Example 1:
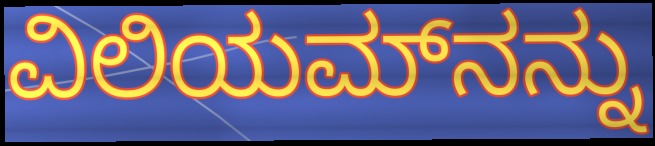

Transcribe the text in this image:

ವಿಲಿಯಮ್‌ನನ್ನು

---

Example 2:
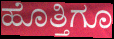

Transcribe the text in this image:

ಹೊತ್ತಿಗೂ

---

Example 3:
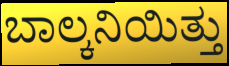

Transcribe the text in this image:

ಬಾಲ್ಕನಿಯಿತ್ತು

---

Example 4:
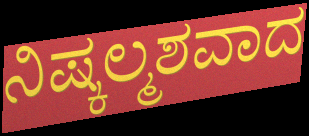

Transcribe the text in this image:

ನಿಷ್ಕಲ್ಮಶವಾದ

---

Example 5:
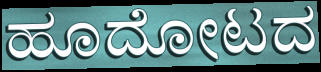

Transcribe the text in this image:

ಹೂದೋಟದ